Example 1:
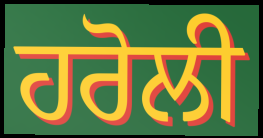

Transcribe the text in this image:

ਹਰੋਲੀ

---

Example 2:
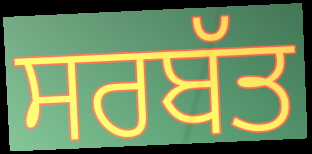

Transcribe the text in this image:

ਸਰਬੱਤ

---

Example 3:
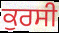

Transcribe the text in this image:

ਕੁਰਸੀ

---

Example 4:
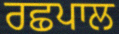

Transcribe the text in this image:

ਰਛਪਾਲ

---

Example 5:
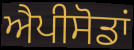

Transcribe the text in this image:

ਐਪੀਸੋਡਾਂ